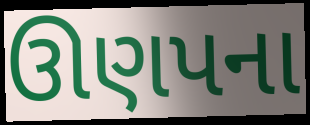
ઊણપના